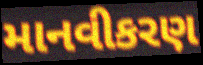
માનવીકરણ